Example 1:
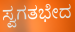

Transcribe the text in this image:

ಸ್ವಗತಭೇದ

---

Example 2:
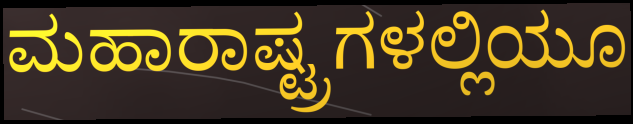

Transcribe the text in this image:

ಮಹಾರಾಷ್ಟ್ರಗಳಲ್ಲಿಯೂ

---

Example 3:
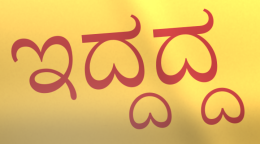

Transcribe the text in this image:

ಇದ್ದದ್ದ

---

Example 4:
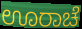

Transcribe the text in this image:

ಊರಾಚೆ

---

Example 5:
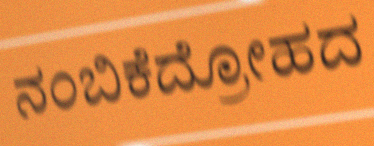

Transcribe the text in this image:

ನಂಬಿಕೆದ್ರೋಹದ